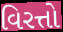
વિરત્તો